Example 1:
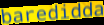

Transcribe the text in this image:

baredidda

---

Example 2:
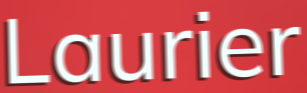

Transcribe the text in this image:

Laurier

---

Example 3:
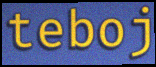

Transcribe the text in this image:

teboj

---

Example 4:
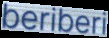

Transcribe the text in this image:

beriberi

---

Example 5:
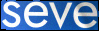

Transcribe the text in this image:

seve